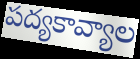
పద్యకావ్యాల